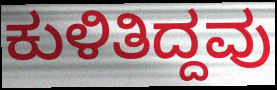
ಕುಳಿತಿದ್ದವು